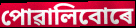
পোৱালিবোৰে